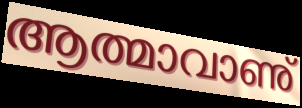
ആത്മാവാണു്